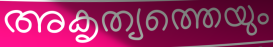
അകൃത്യത്തെയും